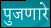
पुजणारे